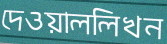
দেওয়াললিখন